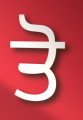
ਤੋ